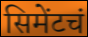
सिमेंटचं